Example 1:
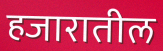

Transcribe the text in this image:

हजारातील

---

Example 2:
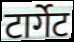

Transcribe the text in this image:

टार्गेट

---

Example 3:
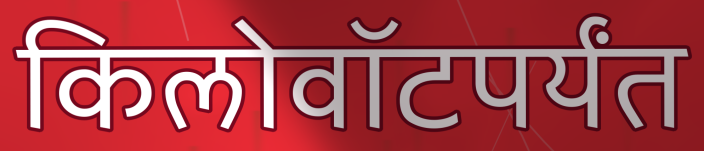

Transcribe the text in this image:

किलोवॉटपर्यंत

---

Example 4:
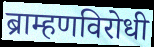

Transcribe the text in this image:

ब्राम्हणविरोधी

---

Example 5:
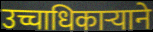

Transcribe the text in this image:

उच्चाधिकाऱ्याने